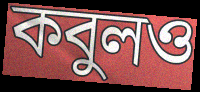
কবুলও